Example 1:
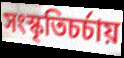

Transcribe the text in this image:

সংস্কৃতিচর্চায়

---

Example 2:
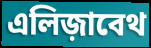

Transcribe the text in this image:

এলিজ়াবেথ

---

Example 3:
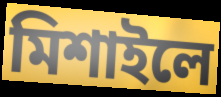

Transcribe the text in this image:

মিশাইলে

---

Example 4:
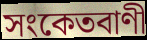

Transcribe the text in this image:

সংকেতবাণী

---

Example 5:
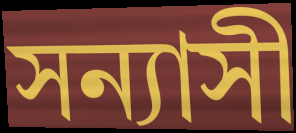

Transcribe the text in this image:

সন্যাসী